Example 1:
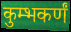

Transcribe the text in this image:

कुम्भकर्णं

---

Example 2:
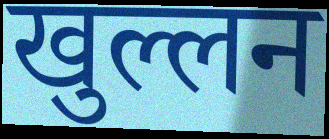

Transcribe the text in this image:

खुल्लन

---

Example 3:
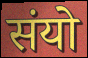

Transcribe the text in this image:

संयो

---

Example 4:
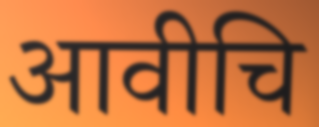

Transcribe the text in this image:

आवीचि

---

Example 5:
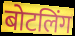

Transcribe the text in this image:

बोटलिंग